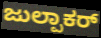
ಜುಲ್ಪಾಕರ್